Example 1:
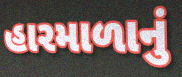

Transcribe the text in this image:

હારમાળાનું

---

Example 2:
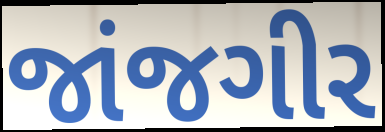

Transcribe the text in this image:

જાંજગીર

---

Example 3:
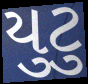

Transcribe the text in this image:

યુટુ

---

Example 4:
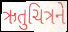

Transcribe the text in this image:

ઋતુચિત્રને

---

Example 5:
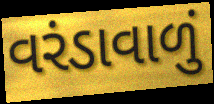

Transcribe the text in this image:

વરંડાવાળું